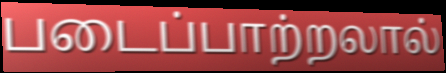
படைப்பாற்றலால்